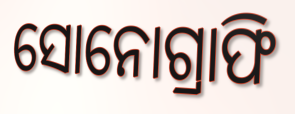
ସୋନୋଗ୍ରାଫି